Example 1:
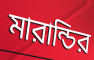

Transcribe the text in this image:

মারান্ডির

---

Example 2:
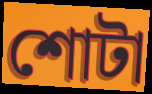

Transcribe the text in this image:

শোটা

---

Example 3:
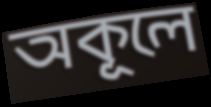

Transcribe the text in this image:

অকূলে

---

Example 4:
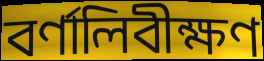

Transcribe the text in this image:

বর্ণালিবীক্ষণ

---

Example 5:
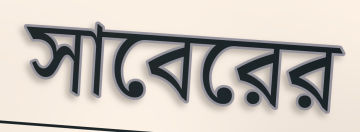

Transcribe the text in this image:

সাবেরের